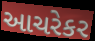
આચરેકર